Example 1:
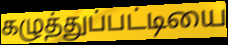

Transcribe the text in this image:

கழுத்துப்பட்டியை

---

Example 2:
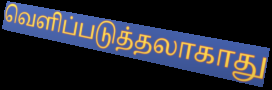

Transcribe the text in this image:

வெளிப்படுத்தலாகாது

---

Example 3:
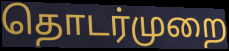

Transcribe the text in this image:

தொடர்முறை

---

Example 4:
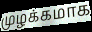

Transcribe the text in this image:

முழக்கமாக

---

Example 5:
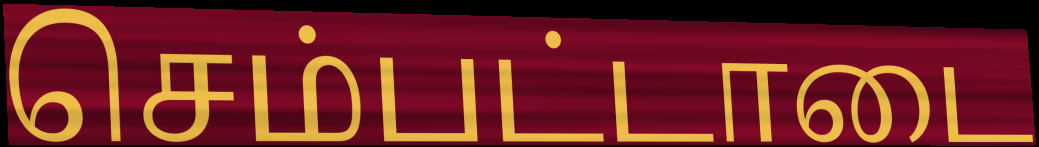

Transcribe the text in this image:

செம்பட்டாடை